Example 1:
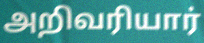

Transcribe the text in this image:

அறிவரியார்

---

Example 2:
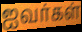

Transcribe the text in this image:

ஐவர்கள்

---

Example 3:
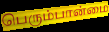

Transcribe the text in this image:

பெரும்பான்மை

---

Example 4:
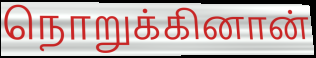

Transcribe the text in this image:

நொறுக்கினான்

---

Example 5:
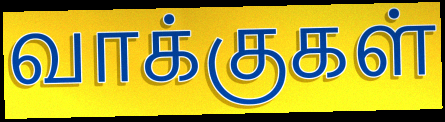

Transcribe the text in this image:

வாக்குகள்